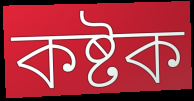
কষ্টক